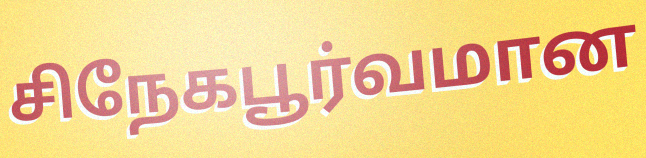
சிநேகபூர்வமான